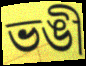
ভঙী